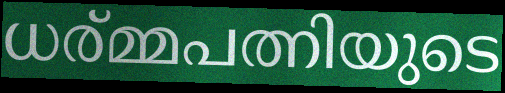
ധര്മ്മപത്നിയുടെ